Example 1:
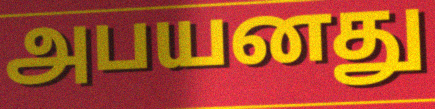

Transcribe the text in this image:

அபயனது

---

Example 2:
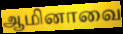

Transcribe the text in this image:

ஆமினாவை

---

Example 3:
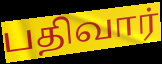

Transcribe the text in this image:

பதிவார்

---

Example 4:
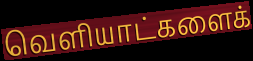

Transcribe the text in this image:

வெளியாட்களைக்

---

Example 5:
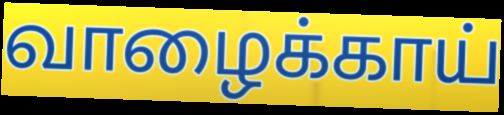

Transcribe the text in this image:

வாழைக்காய்